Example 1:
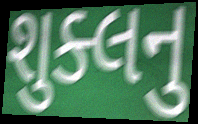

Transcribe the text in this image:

શુક્લનુ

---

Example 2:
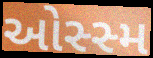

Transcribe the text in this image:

ઓસ્સ્મ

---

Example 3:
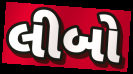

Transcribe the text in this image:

લીબો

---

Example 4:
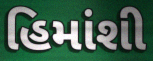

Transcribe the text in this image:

હિમાંશી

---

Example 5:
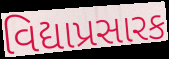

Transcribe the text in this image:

વિદ્યાપ્રસારક